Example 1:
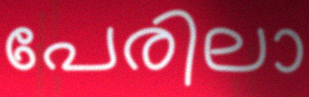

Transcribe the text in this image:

പേരിലാ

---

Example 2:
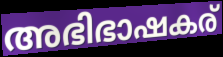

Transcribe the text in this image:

അഭിഭാഷകര്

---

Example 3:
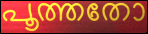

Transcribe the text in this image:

പൂത്തതോ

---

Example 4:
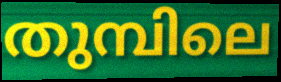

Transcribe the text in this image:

തുമ്പിലെ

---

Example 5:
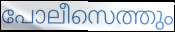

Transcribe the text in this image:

പോലീസെത്തും